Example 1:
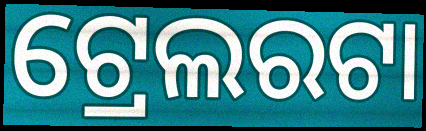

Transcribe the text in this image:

ଟ୍ରେଲରଟା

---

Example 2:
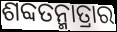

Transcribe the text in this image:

ଶବ୍ଦତନ୍ମାତ୍ରାର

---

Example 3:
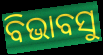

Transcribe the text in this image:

ବିଭାବସୁ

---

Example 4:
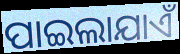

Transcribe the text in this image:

ପାଇଲାଯାଏଁ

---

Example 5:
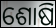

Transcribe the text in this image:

ଶୋଷି